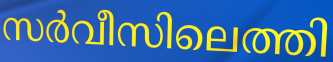
സർവീസിലെത്തി